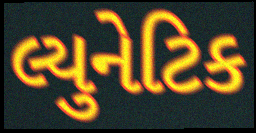
લ્યુનેટિક